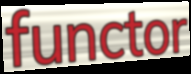
functor